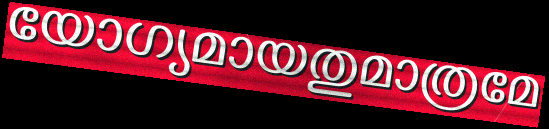
യോഗ്യമായതുമാത്രമേ